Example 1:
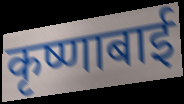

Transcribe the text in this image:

कृष्णाबाई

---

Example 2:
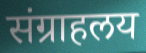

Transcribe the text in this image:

संग्राहलय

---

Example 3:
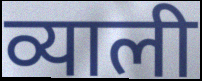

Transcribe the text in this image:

व्याली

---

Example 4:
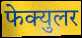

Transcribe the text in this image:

फेक्युलर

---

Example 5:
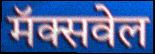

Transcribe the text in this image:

मॅक्सवेल